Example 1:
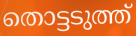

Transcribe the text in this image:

തൊട്ടടുത്ത്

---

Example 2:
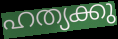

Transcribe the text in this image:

ഹത്യക്കു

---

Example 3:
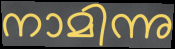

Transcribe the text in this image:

നാമിന്നു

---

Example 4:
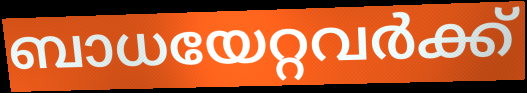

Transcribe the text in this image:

ബാധയേറ്റവർക്ക്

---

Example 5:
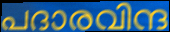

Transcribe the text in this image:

പദാരവിന്ദ